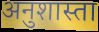
अनुशास्ता